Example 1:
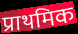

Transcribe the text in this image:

प्राथमिक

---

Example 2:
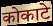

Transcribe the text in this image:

कोकाटे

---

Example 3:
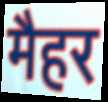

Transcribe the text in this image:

मैहर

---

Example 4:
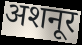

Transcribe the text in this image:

अशनूर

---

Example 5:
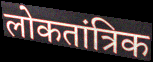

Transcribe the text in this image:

लोकतांत्रिक